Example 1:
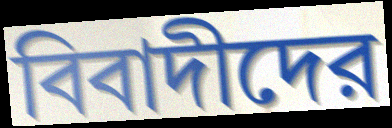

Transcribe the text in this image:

বিবাদীদের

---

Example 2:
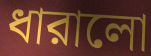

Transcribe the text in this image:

ধারালো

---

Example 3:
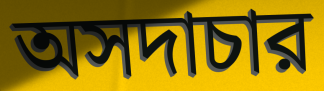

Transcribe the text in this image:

অসদাচার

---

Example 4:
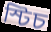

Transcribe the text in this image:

স্টিচ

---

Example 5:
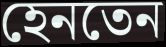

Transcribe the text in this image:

হেনতেন